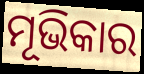
ମୂଭିକାର